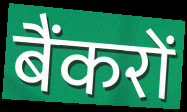
बैंकरों